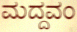
ಮದ್ದವಂ